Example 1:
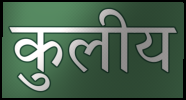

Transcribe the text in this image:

कुलीय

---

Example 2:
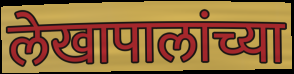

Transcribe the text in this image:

लेखापालांच्या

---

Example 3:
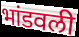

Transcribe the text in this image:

भांडवली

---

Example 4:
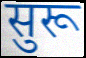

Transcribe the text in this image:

सुरू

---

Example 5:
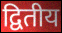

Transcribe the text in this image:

द्वितीय